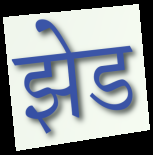
झेड